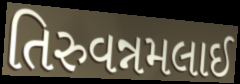
તિરુવન્નમલાઈ